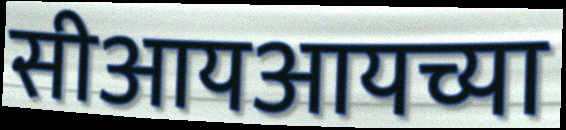
सीआयआयच्या